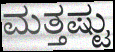
ಮತ್ತಷ್ಟು